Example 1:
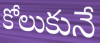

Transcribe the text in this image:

కోలుకునే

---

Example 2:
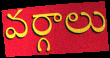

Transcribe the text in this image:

వర్గాలు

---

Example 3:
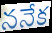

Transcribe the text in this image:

ననేక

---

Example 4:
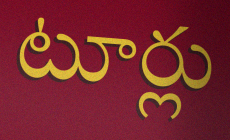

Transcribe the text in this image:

టూర్లు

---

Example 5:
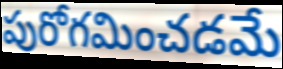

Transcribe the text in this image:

పురోగమించడమే